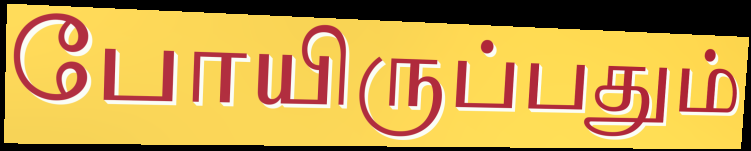
போயிருப்பதும்